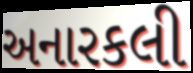
અનારકલી